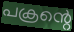
പക്രന്റെ